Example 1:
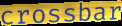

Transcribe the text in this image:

crossbar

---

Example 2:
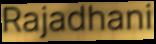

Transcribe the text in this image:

Rajadhani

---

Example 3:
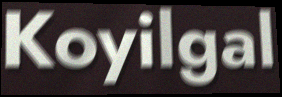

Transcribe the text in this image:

Koyilgal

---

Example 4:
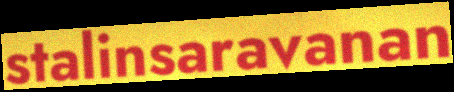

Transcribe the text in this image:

stalinsaravanan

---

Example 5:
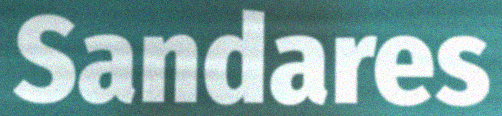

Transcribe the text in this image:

Sandares